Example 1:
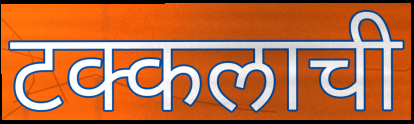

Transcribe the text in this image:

टक्कलाची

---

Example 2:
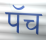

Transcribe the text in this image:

पॅच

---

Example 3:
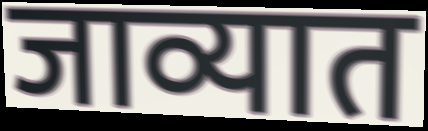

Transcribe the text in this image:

जाव्यात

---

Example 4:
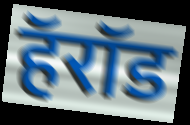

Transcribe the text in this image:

हॅरॉड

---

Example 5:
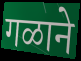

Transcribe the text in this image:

गळाने